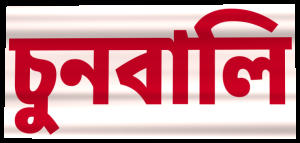
চুনবালি